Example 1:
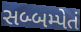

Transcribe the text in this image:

સબ્બમ્પેતં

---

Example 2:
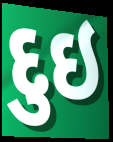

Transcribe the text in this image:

દુઇ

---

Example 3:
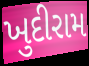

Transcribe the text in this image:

ખુદીરામ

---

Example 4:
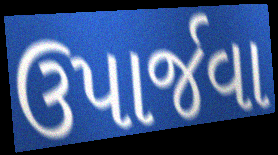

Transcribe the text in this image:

ઉપાર્જવા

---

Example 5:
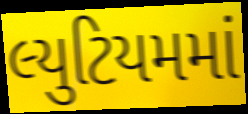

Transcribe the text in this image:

લ્યુટિયમમાં